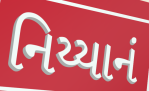
નિય્યાનં